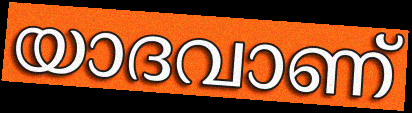
യാദവാണ്